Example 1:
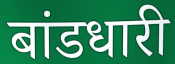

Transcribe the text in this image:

बांडधारी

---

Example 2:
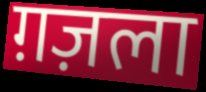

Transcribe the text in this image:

ग़ज़ला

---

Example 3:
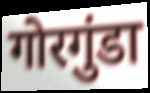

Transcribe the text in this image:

गोरगुंडा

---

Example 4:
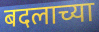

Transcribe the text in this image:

बदलाच्या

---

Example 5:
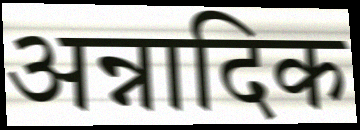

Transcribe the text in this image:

अन्नादिक